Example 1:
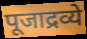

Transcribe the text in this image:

पूजाद्रव्ये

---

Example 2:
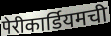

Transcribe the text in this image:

पेरीकार्डियमची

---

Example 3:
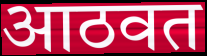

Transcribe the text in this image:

आठवत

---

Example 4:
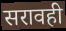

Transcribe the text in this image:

सरावही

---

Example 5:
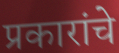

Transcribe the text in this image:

प्रकारांचे